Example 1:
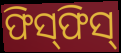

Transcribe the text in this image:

ଫିସ୍‍ଫିସ୍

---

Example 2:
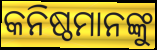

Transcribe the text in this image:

କନିଷ୍ଠମାନଙ୍କୁ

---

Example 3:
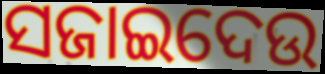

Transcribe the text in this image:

ସଜାଇଦେଉ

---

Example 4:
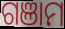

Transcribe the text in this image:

ଗଞାମ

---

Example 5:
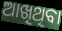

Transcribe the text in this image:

ଆଖିଥିବା